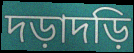
দড়াদড়ি